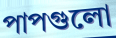
পাপগুলো